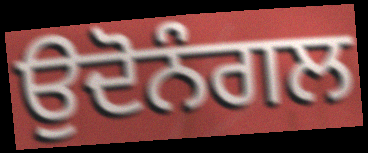
ਉਦੋਨੰਗਲ